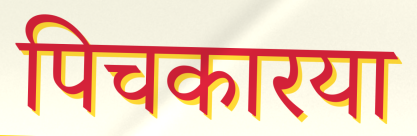
पिचकारया